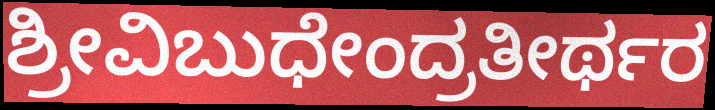
ಶ್ರೀವಿಬುಧೇಂದ್ರತೀರ್ಥರ